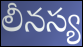
లీనస్య